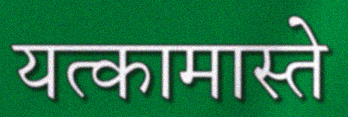
यत्कामास्ते